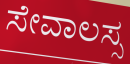
ಸೇವಾಲಸ್ಸ